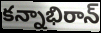
కన్నాభిరాన్